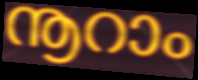
നൂറാം